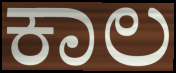
ಕಾಲ